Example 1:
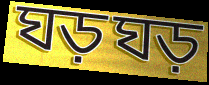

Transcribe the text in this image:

ঘড়ঘড়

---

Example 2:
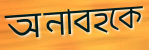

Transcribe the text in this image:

অনাবহকে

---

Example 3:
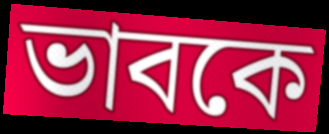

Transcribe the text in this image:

ভাবকে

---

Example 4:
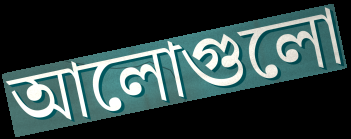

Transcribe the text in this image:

আলোগুলো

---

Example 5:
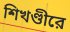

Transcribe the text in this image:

শিখণ্ডীরে